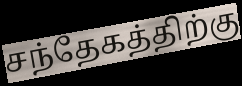
சந்தேகத்திற்கு